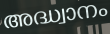
അദ്ധ്വാനം